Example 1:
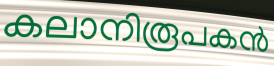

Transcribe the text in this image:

കലാനിരൂപകൻ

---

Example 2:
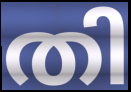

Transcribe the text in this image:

തി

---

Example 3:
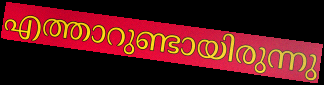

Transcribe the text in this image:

എത്താറുണ്ടായിരുന്നു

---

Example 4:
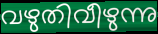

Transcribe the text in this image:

വഴുതിവീഴുന്നു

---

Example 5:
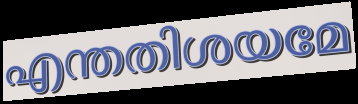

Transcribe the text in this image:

എന്തതിശയമേ